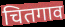
चितगाव